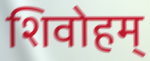
शिवोहम्